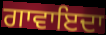
ਗਾਵਾਇਦਾ